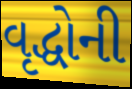
વૃદ્ધોની